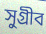
সুগ্রীব